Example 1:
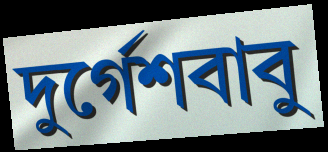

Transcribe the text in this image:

দুর্গেশবাবু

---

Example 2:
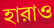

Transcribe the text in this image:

হারাও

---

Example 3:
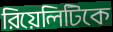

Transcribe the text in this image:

রিয়েলিটিকে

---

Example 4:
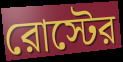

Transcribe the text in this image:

রোস্টের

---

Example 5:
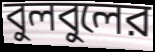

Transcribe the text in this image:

বুলবুলের